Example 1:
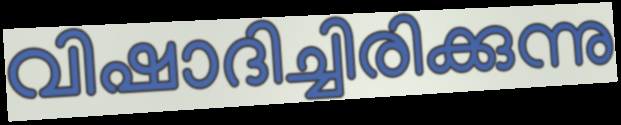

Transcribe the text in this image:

വിഷാദിച്ചിരിക്കുന്നു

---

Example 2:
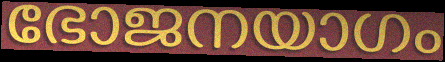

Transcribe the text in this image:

ഭോജനയാഗം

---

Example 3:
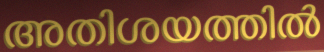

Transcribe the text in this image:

അതിശയത്തിൽ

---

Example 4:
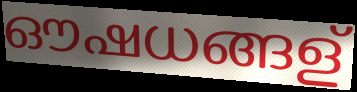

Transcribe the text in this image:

ഔഷധങ്ങള്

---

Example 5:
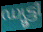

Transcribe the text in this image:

ഡ്യൂട്ടി